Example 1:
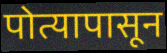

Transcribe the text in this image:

पोत्यापासून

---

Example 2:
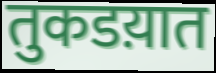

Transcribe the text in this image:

तुकडय़ात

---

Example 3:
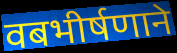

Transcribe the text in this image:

वबभीर्षणाने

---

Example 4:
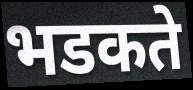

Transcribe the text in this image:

भडकते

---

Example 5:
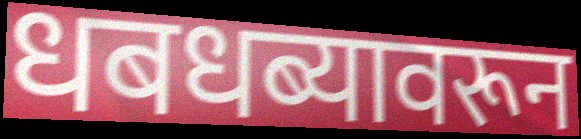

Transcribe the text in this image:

धबधब्यावरून